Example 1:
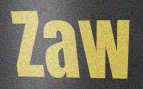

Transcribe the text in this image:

Zaw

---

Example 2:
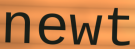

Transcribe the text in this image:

newt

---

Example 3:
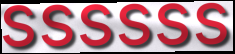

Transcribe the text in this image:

ssssss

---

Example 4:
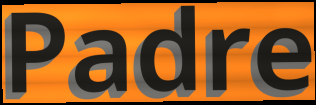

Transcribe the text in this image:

Padre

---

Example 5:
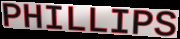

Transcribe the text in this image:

PHILLIPS